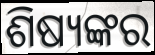
ଶିଷ୍ୟଙ୍କର